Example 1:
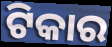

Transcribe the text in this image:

ଟିକାର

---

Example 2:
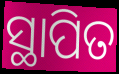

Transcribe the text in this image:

ସ୍ଥାପିତ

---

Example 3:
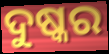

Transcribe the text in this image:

ଦୁଷ୍କର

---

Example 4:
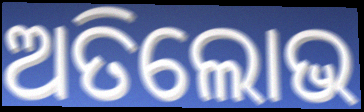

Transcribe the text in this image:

ଅତିଲୋଭ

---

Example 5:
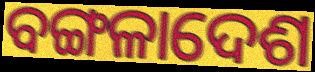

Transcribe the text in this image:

ବଙ୍ଗଳାଦେଶ